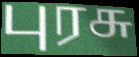
புரசு